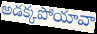
అడక్కపోయావా